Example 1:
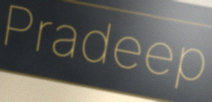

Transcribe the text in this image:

Pradeep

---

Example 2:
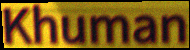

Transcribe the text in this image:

Khuman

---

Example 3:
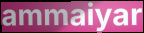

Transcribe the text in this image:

ammaiyar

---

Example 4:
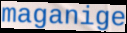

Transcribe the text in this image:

maganige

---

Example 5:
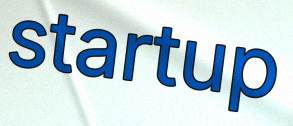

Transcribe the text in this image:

startup